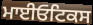
ਮਾਈਓਟਿਕਸ